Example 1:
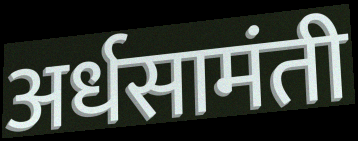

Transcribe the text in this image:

अर्धसामंती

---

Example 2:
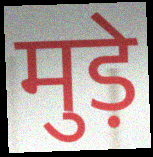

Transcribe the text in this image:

मुड़े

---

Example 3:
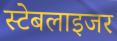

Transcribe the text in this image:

स्टेबलाइजर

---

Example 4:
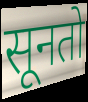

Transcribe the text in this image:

सूनतो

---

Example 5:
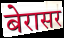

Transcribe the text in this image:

बेरासर